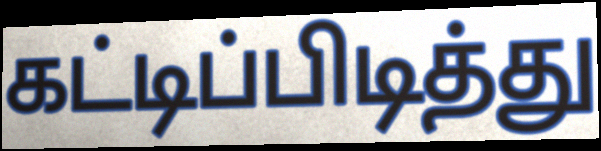
கட்டிப்பிடித்து